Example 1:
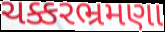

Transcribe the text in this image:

ચક્કરભ્રમણા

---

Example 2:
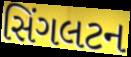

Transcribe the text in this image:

સિંગલટન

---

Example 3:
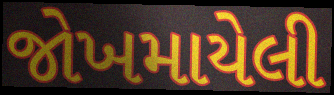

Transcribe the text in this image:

જોખમાયેલી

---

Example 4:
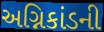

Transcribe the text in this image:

અગ્નિકાંડની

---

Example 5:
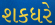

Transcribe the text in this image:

શકધરે